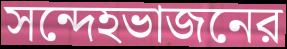
সন্দেহভাজনের